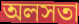
অলসতা